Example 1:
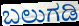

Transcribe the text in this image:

ಬಲುಗಡಿ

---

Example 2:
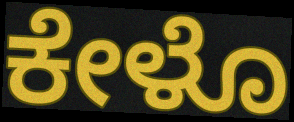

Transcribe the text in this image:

ಕೇಳೊ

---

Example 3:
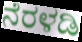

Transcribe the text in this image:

ನೆರಳಡಿ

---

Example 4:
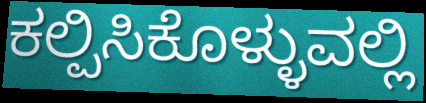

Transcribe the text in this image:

ಕಲ್ಪಿಸಿಕೊಳ್ಳುವಲ್ಲಿ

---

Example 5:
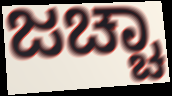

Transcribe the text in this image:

ಜಚ್ಚಾ